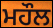
ਮਹੌਲ